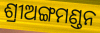
ଶ୍ରୀଅଙ୍ଗମଣ୍ଡନ